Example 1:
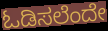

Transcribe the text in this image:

ಓಡಿಸಲೆಂದೇ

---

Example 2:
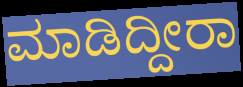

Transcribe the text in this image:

ಮಾಡಿದ್ದೀರಾ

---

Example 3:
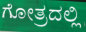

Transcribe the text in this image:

ಗೋತ್ರದಲ್ಲಿ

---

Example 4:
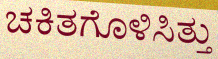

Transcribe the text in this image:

ಚಕಿತಗೊಳಿಸಿತ್ತು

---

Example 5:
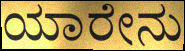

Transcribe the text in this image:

ಯಾರೇನು